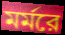
মর্মরে